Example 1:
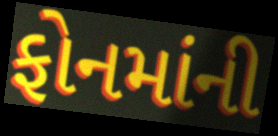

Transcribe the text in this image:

ફોનમાંની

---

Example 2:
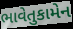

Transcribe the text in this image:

ભાવેતુકામેન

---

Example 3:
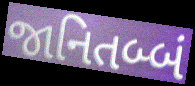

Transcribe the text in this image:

જાનિતબ્બં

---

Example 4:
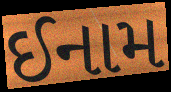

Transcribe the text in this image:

ઈનામ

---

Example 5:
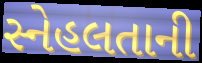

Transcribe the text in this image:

સ્નેહલતાની